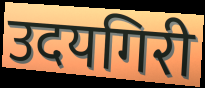
उदयगिरी